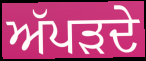
ਅੱਪੜਦੇ